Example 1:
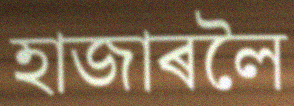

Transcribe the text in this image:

হাজাৰলৈ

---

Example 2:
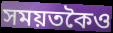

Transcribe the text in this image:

সময়তকৈও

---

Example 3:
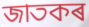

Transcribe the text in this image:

জাতকৰ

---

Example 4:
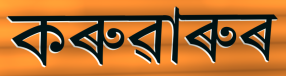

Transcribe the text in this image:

কৰুৱাৰুৰ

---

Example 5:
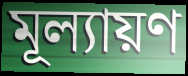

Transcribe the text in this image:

মূল্যায়ণ